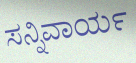
ಸನ್ನಿವಾರ್ಯ